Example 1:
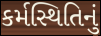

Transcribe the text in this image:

કર્મસ્થિતિનું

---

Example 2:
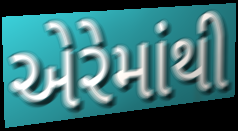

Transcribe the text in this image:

એરેમાંથી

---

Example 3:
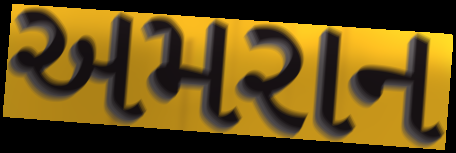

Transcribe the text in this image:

અમરાન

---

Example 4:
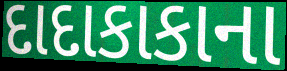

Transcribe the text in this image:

દાદાકાકાના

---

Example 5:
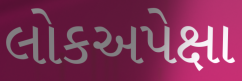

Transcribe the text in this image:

લોકઅપેક્ષા